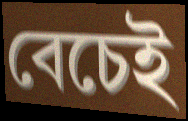
বেচেই